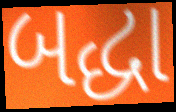
બદ્ધા